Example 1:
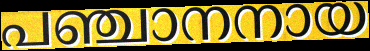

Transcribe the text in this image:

പഞ്ചാനനായ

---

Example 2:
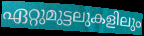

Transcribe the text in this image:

ഏറ്റുമുട്ടലുകളിലും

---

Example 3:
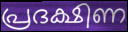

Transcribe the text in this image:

പ്രദക്ഷിണ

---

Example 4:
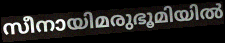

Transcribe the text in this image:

സീനായിമരുഭൂമിയിൽ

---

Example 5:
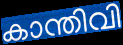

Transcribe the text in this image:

കാന്തിവി